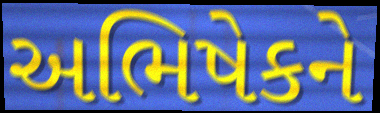
અભિષેકને